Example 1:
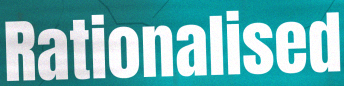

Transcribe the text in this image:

Rationalised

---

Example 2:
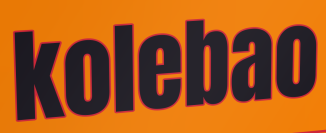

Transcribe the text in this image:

kolebao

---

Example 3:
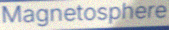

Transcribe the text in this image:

Magnetosphere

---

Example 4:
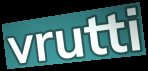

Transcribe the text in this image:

vrutti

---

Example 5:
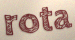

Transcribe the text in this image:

rota